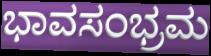
ಭಾವಸಂಭ್ರಮ